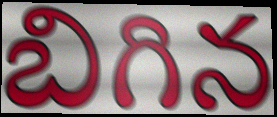
బిగిన